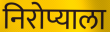
निरोप्याला